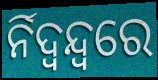
ର୍ନିଦ୍ୱନ୍ଦ୍ୱରେ